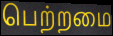
பெற்றமை